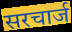
सरचार्ज